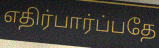
எதிர்பார்ப்பதே